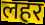
लहर